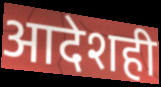
आदेशही